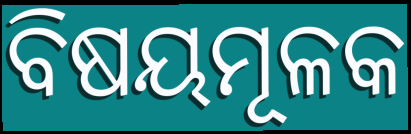
ବିଷୟମୂଳକ